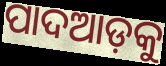
ପାଦଆଡ଼କୁ